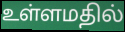
உள்ளமதில்